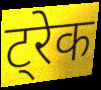
ट्रेक